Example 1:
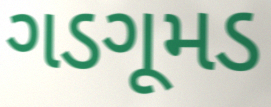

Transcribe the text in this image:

ગડગૂમડ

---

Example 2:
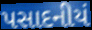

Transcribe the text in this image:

પસાદનીયં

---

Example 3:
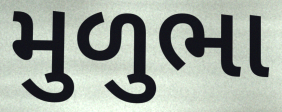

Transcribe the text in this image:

મુળુભા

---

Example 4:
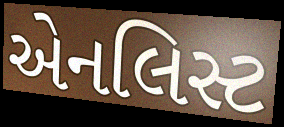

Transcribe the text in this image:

એનલિસ્ટ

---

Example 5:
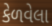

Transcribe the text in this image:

કેળવેલા